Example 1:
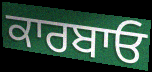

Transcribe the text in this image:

ਕਾਰਬਾਓ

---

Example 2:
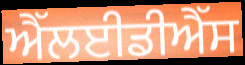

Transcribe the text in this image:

ਐੱਲਈਡੀਐੱਸ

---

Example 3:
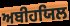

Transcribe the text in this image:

ਅਬੀਹਯਿਲ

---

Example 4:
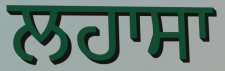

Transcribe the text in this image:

ਲਹਾਸਾ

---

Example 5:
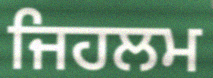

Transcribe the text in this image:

ਜਿਹਲਮ